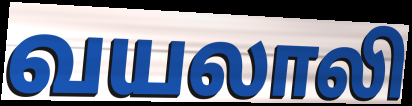
வயலாலி